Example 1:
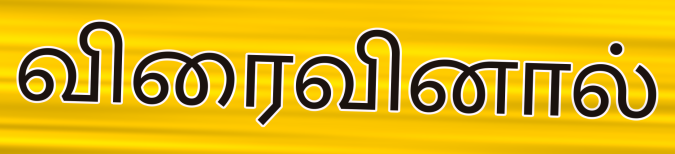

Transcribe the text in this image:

விரைவினால்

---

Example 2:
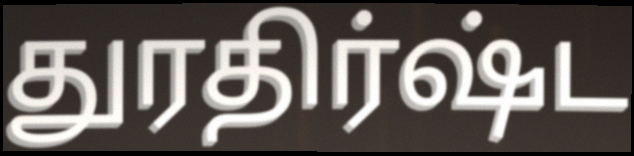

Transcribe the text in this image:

துரதிர்ஷ்ட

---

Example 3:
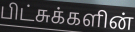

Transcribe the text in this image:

பிட்சுக்களின்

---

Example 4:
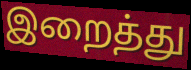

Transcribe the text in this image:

இறைத்து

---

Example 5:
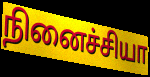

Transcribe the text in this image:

நினைச்சியா